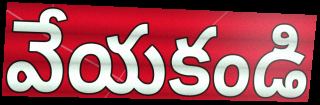
వేయకండి